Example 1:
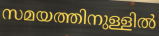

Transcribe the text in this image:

സമയത്തിനുള്ളിൽ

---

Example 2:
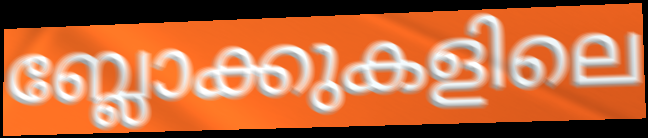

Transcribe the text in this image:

ബ്ലോക്കുകളിലെ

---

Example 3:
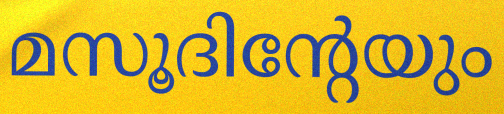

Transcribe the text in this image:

മസൂദിന്റേയും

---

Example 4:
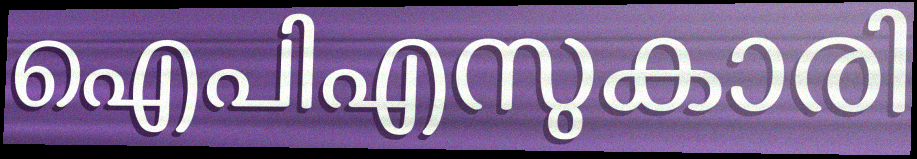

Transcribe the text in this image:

ഐപിഎസുകാരി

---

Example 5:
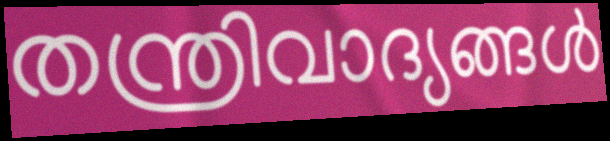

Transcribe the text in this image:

തന്ത്രിവാദ്യങ്ങൾ